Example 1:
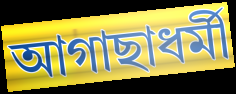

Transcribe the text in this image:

আগাছাধর্মী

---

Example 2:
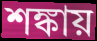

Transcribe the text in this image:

শঙ্কায়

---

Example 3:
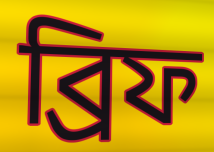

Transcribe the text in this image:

ব্রিফ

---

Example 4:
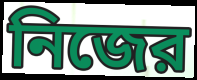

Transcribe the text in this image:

নিজের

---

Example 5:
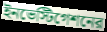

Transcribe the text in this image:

ইনভেস্টিগেশনের